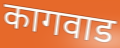
कागवाड